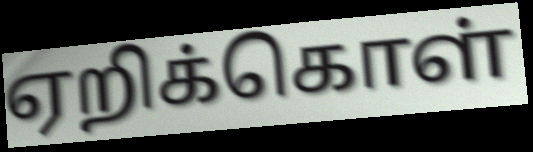
ஏறிக்கொள்